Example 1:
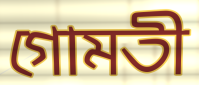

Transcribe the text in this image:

গোমতী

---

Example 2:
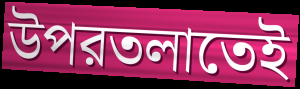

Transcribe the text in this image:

উপরতলাতেই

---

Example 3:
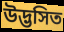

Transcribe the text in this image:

উদ্ভসিত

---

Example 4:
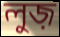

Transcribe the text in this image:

লুজ়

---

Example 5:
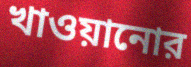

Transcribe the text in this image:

খাওয়ানোর